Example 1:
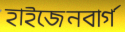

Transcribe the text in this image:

হাইজেনবার্গ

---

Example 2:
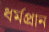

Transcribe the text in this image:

ধর্মপ্রান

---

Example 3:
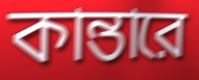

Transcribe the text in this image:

কান্তারে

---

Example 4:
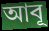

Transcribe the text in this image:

আবূ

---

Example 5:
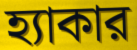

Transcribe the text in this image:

হ্যাকার